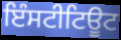
ਇੰਸਟੀਟਿਊਟ